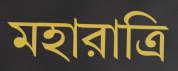
মহারাত্রি